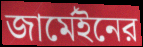
জার্মেইনের